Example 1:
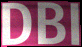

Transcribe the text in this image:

DBI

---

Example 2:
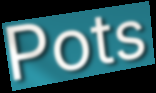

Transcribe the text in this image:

Pots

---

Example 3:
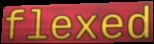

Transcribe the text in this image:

flexed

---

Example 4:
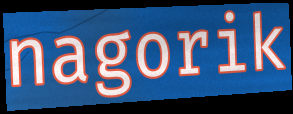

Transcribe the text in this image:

nagorik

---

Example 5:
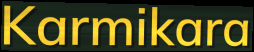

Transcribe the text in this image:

Karmikara